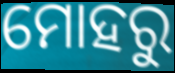
ମୋହରୁ